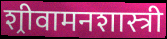
श्रीवामनशास्त्री